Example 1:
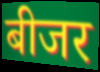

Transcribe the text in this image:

बीजर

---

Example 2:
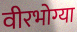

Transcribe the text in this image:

वीरभोग्या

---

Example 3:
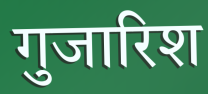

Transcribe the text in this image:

गुजारिश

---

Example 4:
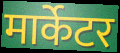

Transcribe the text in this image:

मार्केटर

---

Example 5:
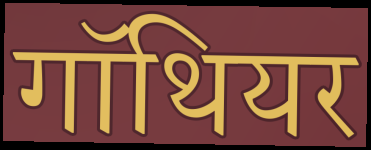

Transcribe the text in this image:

गॉथियर